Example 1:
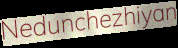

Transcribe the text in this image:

Nedunchezhiyan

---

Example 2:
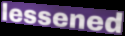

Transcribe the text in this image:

lessened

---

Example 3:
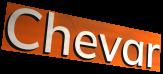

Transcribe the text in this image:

Chevar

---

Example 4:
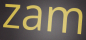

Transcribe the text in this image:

zam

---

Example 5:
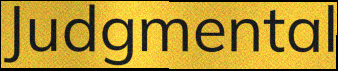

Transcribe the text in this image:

Judgmental